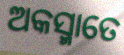
ଅକସ୍ମାତେ